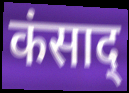
कंसाद्